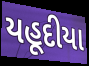
યહૂદીયા